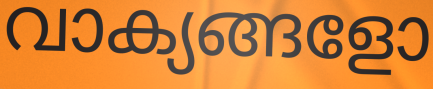
വാക്യങ്ങളോ